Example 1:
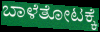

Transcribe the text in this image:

ಬಾಳೆತೋಟಕ್ಕೆ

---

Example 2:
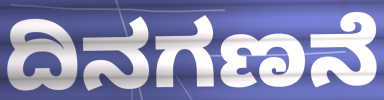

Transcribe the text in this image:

ದಿನಗಣನೆ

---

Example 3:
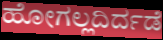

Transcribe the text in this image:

ಹೋಗಲ್ಲದಿರ್ದಡೆ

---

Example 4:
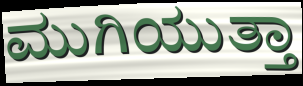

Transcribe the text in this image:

ಮುಗಿಯುತ್ತಾ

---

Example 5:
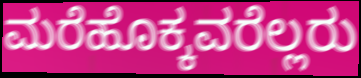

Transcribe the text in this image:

ಮರೆಹೊಕ್ಕವರೆಲ್ಲರು